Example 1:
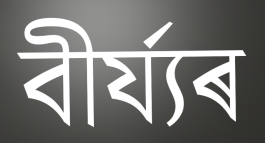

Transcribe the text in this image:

বীৰ্য্যৰ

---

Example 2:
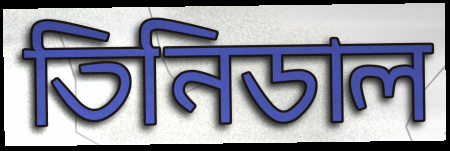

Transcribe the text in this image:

তিনিডাল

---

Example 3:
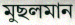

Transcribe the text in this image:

মুছলমান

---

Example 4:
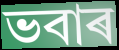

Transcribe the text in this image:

ভবাৰ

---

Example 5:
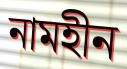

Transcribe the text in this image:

নামহীন